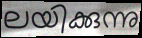
ലയിക്കുന്നു